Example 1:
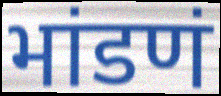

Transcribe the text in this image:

भांडणं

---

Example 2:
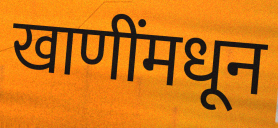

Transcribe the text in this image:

खाणींमधून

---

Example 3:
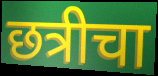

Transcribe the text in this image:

छत्रीचा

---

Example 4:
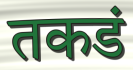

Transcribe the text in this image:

तकडं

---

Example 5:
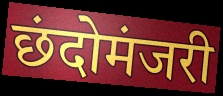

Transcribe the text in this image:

छंदोमंजरी